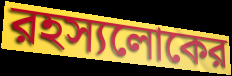
রহস্যলোকের